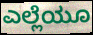
ಎಲ್ಲೆಯೂ